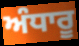
ਅੰਧਾਰੂ